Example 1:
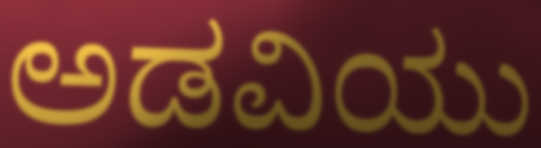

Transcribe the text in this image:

ಅಡವಿಯು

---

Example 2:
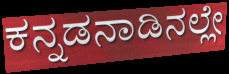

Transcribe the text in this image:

ಕನ್ನಡನಾಡಿನಲ್ಲೇ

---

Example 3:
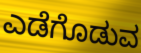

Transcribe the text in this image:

ಎಡೆಗೊಡುವ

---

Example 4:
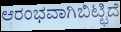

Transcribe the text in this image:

ಆರಂಭವಾಗಿಬಿಟ್ಟಿದೆ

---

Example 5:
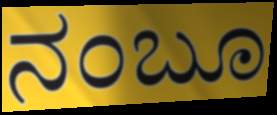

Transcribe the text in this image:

ನಂಬೂ